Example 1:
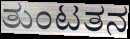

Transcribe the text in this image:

ತುಂಟತನ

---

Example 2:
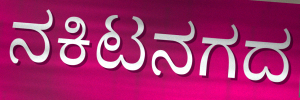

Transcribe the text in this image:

ನಕಿಟನಗದ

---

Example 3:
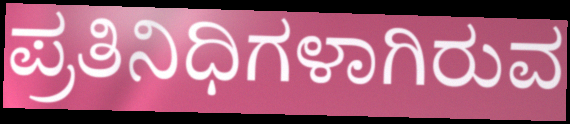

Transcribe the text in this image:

ಪ್ರತಿನಿಧಿಗಳಾಗಿರುವ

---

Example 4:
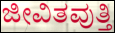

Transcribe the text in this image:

ಜೀವಿತವುತ್ತಿ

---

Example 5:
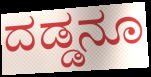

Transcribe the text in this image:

ದಡ್ಡನೂ